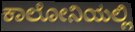
ಕಾಲೋನಿಯಲ್ಲಿ